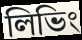
লিভিং